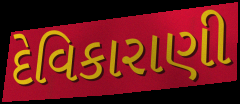
દેવિકારાણી